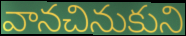
వానచినుకుని